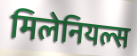
मिलेनियल्स